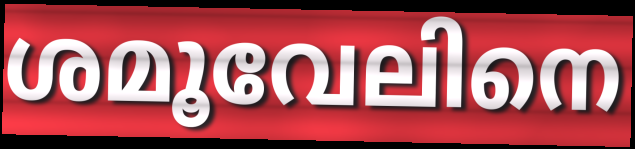
ശമൂവേലിനെ